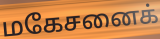
மகேசனைக்